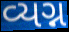
વ્યગ્ન